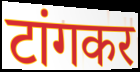
टांगकर